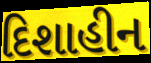
દિશાહીન